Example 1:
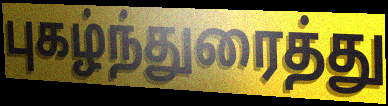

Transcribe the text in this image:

புகழ்ந்துரைத்து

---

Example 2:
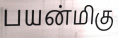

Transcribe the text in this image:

பயன்மிகு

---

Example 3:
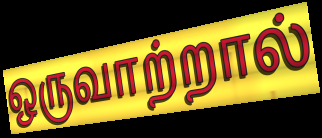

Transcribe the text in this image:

ஒருவாற்றால்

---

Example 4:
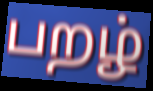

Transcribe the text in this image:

பறழ்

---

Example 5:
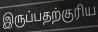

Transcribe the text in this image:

இருப்பதற்குரிய